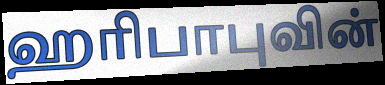
ஹரிபாபுவின்